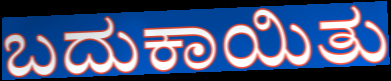
ಬದುಕಾಯಿತು